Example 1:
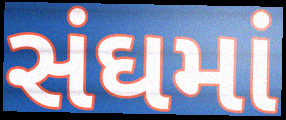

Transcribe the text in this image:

સંઘમાં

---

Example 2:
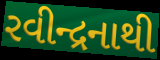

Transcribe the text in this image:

રવીન્દ્રનાથી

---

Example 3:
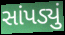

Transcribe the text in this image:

સાંપડ્યું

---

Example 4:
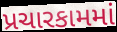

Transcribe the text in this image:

પ્રચારકામમાં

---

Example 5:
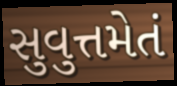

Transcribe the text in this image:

સુવુત્તમેતં